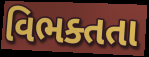
વિભક્તતા